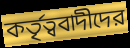
কর্তৃত্ববাদীদের